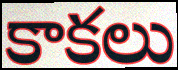
కాకలు